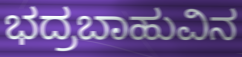
ಭದ್ರಬಾಹುವಿನ